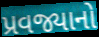
પ્રવજ્યાનો